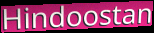
Hindoostan